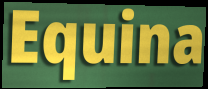
Equina